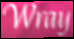
Wray